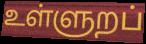
உள்ளுறப்